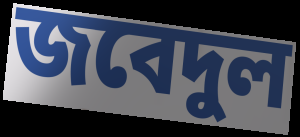
জবেদুল